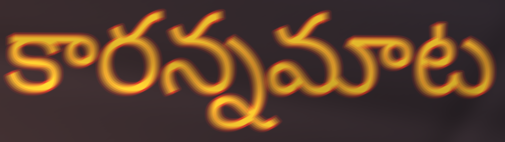
కారన్నమాట